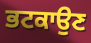
ਭਟਕਾਉਣ